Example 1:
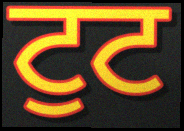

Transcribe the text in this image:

ਟੁਟ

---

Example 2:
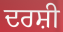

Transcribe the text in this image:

ਦਰਸ਼ੀ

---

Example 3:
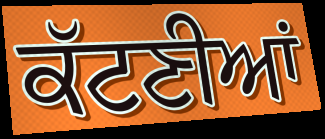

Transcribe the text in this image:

ਕੱਟਣੀਆਂ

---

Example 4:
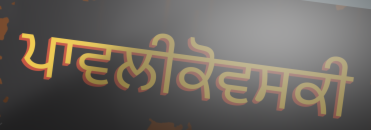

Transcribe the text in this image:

ਪਾਵਲੀਕੋਵਸਕੀ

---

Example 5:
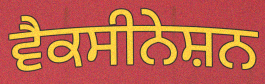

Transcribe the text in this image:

ਵੈਕਸੀਨੇਸ਼ਨ